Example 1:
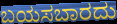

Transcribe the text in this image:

ಬಯಸಬಾರದು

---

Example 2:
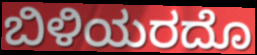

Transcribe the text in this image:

ಬಿಳಿಯರದೊ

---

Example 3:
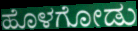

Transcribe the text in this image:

ಹೊಳಗೋಡು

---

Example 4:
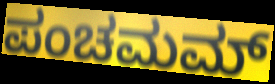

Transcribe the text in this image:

ಪಂಚಮಮ್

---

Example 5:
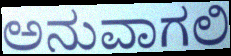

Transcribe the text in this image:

ಅನುವಾಗಲಿ